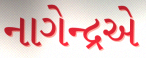
નાગેન્દ્રએ